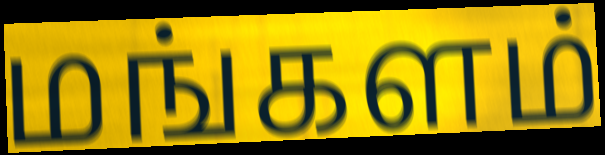
மங்களம்